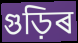
গুড়িৰ